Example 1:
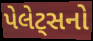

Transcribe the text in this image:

પેલેટ્સનો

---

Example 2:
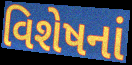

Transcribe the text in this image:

વિશેષનાં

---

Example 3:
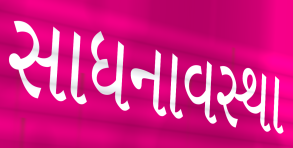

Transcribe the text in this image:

સાધનાવસ્થા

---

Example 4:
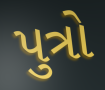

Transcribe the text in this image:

પુત્રો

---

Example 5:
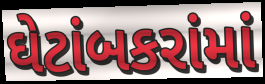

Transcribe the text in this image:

ઘેટાંબકરાંમાં